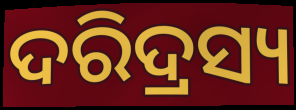
ଦରିଦ୍ରସ୍ୟ